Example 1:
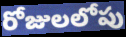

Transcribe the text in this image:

రోజులలోపు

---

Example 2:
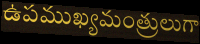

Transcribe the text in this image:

ఉపముఖ్యమంత్రులుగా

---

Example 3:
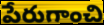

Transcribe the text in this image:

పేరుగాంచి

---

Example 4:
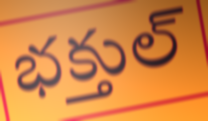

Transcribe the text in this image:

భక్తుల్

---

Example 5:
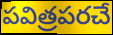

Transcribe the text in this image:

పవిత్రపరచే